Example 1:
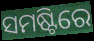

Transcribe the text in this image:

ସମଷ୍ଟିରେ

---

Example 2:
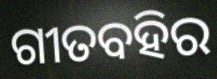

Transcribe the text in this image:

ଗୀତବହିର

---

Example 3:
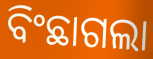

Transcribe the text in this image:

ବିଂଛାଗଲା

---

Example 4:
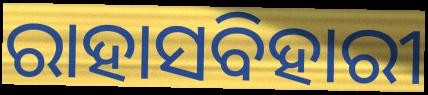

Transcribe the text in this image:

ରାହାସବିହାରୀ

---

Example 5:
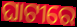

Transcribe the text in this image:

ଘାଟୀରେ